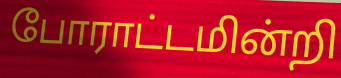
போராட்டமின்றி